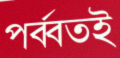
পর্ব্বতই